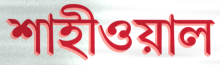
শাহীওয়াল